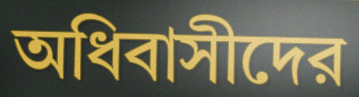
অধিবাসীদের